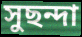
সুছন্দা